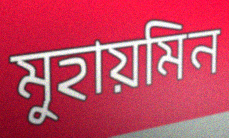
মুহায়মিন